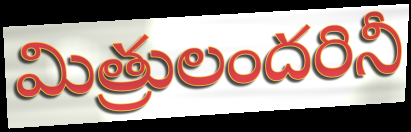
మిత్రులందరినీ